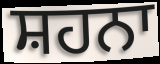
ਸ਼ਹਨਾ